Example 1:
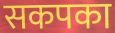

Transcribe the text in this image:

सकपका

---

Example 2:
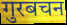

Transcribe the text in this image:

गुरबचन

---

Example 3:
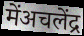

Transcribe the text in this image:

मेंअचलेंद्र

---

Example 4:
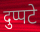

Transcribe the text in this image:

दुप्पटे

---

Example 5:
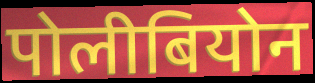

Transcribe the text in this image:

पोलीबियोन